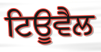
ਟਿਊਵੈਲ